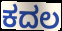
ಕದಲ